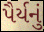
પૈર્યનું